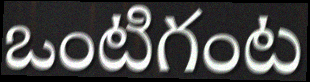
ఒంటిగంట